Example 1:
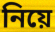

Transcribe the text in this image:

নিয়ে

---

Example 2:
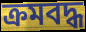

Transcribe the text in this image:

ক্ৰমবদ্ধ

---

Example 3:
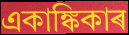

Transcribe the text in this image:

একাঙ্কিকাৰ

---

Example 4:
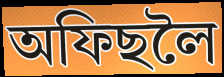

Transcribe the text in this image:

অফিছলৈ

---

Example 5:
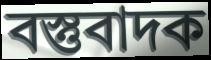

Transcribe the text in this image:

বস্তুবাদক